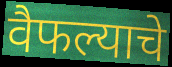
वैफल्याचे